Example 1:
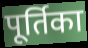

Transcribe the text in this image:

पूर्तिका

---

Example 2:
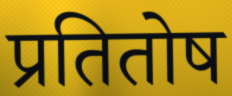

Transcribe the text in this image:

प्रतितोष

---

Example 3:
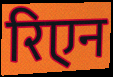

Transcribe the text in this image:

रिएन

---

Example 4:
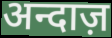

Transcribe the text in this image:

अन्दाज़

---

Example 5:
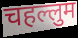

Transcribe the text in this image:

चहल्लुम